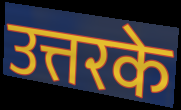
उत्तरके